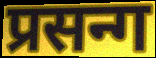
प्रसन्ग